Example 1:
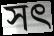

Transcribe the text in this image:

সৎ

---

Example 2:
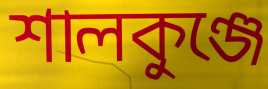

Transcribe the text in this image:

শালকুঞ্জে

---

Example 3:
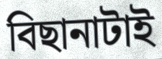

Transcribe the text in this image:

বিছানাটাই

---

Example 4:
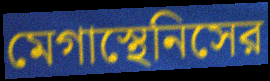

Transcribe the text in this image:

মেগাস্থেনিসের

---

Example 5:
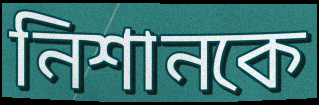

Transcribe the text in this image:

নিশানকে